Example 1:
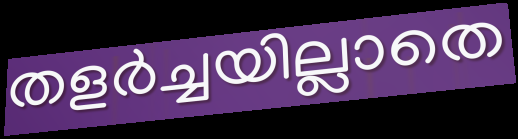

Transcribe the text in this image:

തളർച്ചയില്ലാതെ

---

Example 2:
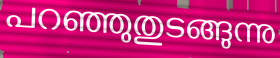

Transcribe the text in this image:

പറഞ്ഞുതുടങ്ങുന്നു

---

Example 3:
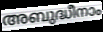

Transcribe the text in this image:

അബുദ്ധീനാം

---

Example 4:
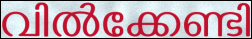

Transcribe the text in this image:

വിൽക്കേണ്ടി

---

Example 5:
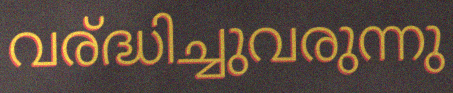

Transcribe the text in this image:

വര്ദ്ധിച്ചുവരുന്നു